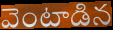
వెంటాడిన